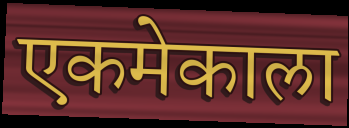
एकमेकाला